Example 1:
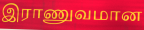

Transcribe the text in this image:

இராணுவமான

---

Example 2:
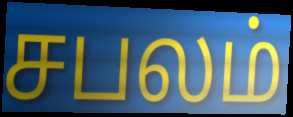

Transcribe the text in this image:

சபலம்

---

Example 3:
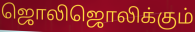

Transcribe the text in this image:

ஜொலிஜொலிக்கும்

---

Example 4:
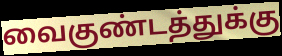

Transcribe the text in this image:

வைகுண்டத்துக்கு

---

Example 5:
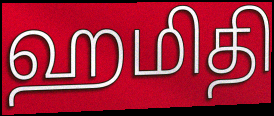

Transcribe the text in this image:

ஹமிதி